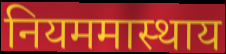
नियममास्थाय